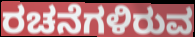
ರಚನೆಗಳಿರುವ